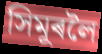
সিমূৰলৈ